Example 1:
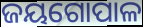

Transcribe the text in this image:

ଜୟଗୋପାଳ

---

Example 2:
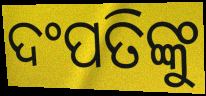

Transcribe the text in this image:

ଦଂପତିଙ୍କୁ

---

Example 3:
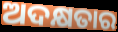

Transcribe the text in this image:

ଅଦକ୍ଷତାର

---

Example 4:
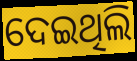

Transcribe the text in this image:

ଦେଇଥିଲି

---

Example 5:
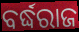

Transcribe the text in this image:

ବର୍ଦ୍ଧରାଜ